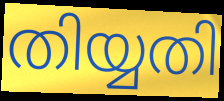
തിയ്യതി